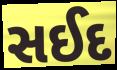
સઈદ